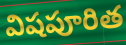
విషపూరిత